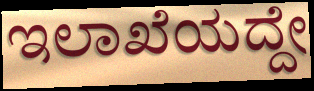
ಇಲಾಖೆಯದ್ದೇ